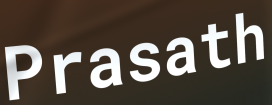
Prasath